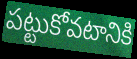
పట్టుకోవటానికి